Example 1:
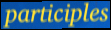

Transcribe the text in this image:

participles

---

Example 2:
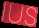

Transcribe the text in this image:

IUS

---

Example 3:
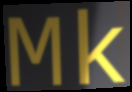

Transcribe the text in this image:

Mk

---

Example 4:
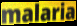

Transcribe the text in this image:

malaria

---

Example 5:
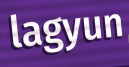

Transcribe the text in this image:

lagyun